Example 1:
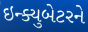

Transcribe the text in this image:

ઇન્ક્યુબેટરને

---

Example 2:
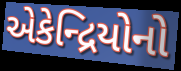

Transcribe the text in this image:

એકેન્દ્રિયોનો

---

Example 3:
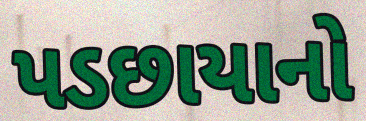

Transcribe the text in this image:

પડછાયાનો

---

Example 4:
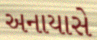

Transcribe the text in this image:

અનાયાસે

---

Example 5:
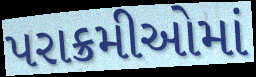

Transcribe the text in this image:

પરાક્રમીઓમાં